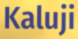
Kaluji